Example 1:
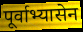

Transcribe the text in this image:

पूर्वाभ्यासेन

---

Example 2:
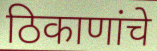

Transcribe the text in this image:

ठिकाणांचे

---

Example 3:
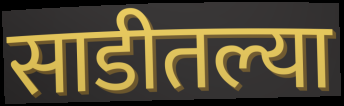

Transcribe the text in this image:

साडीतल्या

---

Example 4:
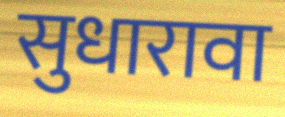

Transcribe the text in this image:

सुधारावा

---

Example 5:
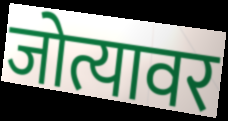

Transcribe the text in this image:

जोत्यावर